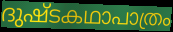
ദുഷ്ടകഥാപാത്രം